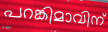
പറങ്കിമാവിന്